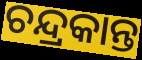
ଚନ୍ଦ୍ରକାନ୍ତ